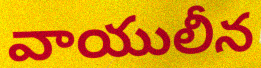
వాయులీన